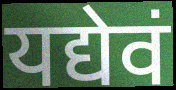
यद्येवं